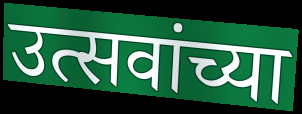
उत्सवांच्या